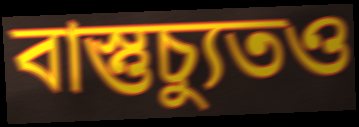
বাস্তুচ্যুতও